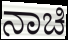
ನಾಚಿ